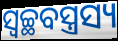
ସ୍ଵଚ୍ଛବସ୍ତ୍ରସ୍ୟ